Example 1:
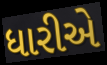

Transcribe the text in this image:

ધારીએ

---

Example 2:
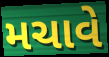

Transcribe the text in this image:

મચાવે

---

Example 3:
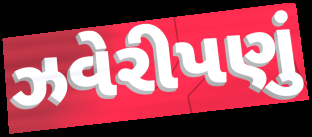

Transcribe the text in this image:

ઝવેરીપણું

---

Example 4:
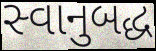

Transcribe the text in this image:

સ્વાનુબદ્ધ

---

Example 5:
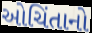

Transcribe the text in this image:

ઓચિંતાનો